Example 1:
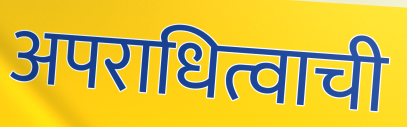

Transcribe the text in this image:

अपराधित्वाची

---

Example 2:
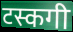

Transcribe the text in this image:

टस्कगी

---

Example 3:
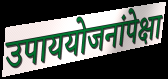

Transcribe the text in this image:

उपाययोजनांपेक्षा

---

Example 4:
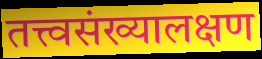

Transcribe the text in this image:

तत्त्वसंख्यालक्षण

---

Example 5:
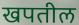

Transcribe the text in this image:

खपतील